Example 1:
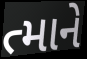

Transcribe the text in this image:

ત્માને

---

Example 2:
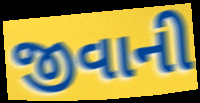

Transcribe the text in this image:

જીવાની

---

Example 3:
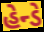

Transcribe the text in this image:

હેન્ડે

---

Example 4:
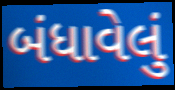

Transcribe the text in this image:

બંધાવેલું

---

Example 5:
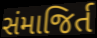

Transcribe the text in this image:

સંમાજિર્ત